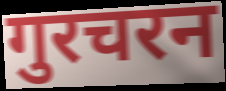
गुरचरन